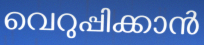
വെറുപ്പിക്കാൻ